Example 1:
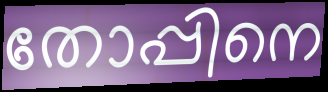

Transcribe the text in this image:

തോപ്പിനെ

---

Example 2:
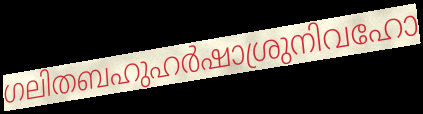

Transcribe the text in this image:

ഗലിതബഹുഹർഷാശ്രുനിവഹോ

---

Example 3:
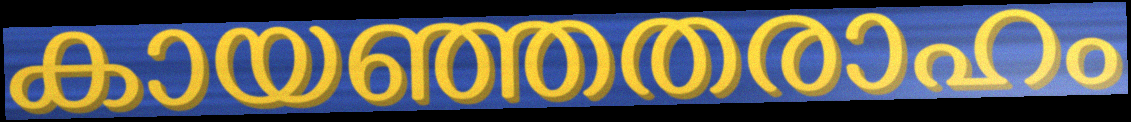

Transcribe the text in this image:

കായഞ്ഞതരാഹം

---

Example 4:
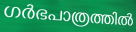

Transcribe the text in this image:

ഗർഭപാത്രത്തിൽ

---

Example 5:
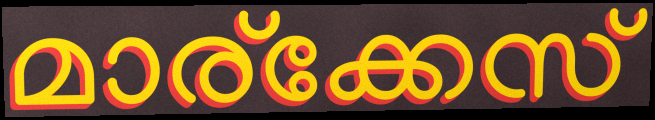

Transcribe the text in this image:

മാര്ക്കേസ്